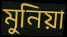
মুনিয়া